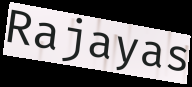
Rajayas